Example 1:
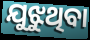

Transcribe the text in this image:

ଯୁଝୁଥିବା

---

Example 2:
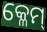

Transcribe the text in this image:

କ୍ଳେମ୍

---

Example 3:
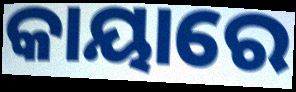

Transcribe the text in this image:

କାୟାରେ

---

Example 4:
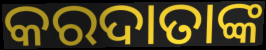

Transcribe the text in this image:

କରଦାତାଙ୍କ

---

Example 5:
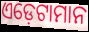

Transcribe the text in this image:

ଏଡ଼େଟାମାନ